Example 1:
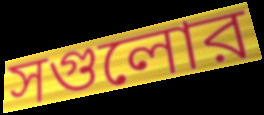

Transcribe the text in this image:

সগুলোর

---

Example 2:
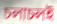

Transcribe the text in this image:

চলাচলই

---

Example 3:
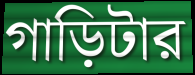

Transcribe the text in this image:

গাড়িটার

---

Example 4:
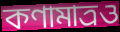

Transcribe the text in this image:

কণামাত্রও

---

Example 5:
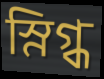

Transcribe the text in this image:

স্নিগ্ধ